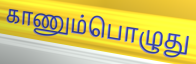
காணும்பொழுது